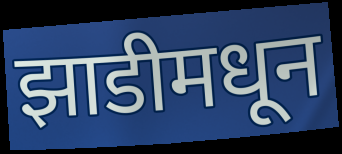
झाडीमधून